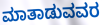
ಮಾತಾಡುವವರ